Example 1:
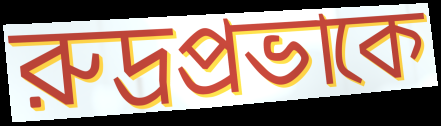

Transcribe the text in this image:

রুদ্রপ্রভাকে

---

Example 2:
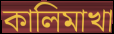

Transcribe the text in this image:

কালিমাখা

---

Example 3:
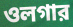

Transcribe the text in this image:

ওলগার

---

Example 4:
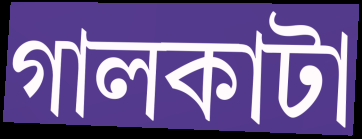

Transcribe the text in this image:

গালকাটা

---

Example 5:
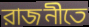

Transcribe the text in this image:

রাজনীতে